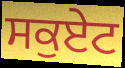
ਸਕੁਏਟ